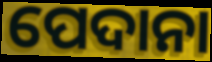
ପେଦାନା